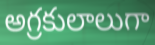
అగ్రకులాలుగా